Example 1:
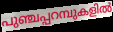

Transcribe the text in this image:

പുഞ്ചപ്പറമ്പുകളിൽ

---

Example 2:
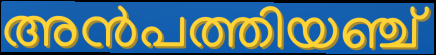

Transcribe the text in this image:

അൻപത്തിയഞ്ച്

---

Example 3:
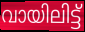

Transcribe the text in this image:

വായിലിട്ട്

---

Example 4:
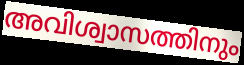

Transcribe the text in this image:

അവിശ്വാസത്തിനും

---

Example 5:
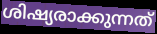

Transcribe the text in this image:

ശിഷ്യരാക്കുന്നത്